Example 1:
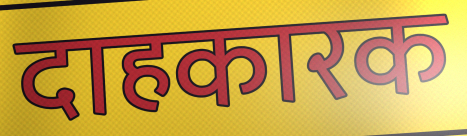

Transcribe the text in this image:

दाहकारक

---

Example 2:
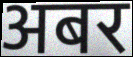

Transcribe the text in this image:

अबर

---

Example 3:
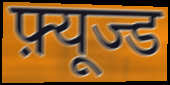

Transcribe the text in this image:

फ़्यूज्ड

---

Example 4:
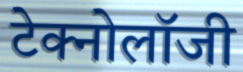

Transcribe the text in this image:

टेक्‍नोलॉजी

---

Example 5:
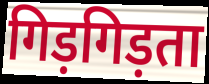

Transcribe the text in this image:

गिड़गिड़ता